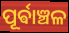
ପୂର୍ଵାଞ୍ଚଳ